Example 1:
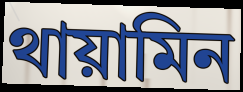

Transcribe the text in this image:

থায়ামিন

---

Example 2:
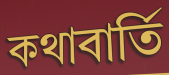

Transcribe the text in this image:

কথাবার্তি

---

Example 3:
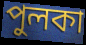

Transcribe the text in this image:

পুলকা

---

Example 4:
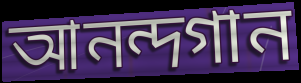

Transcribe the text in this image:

আনন্দগান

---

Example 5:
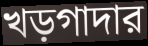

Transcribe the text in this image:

খড়গাদার